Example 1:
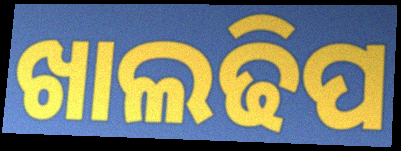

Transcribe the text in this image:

ଖାଲଢିପ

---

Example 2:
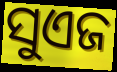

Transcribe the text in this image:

ସୁଏଜ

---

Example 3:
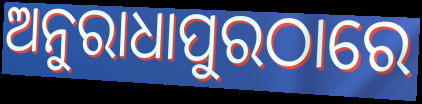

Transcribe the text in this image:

ଅନୁରାଧାପୁରଠାରେ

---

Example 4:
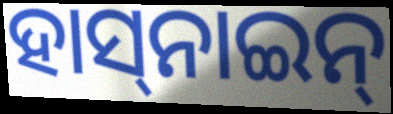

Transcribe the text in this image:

ହାସ୍‌ନାଇନ୍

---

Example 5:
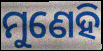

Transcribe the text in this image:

ମୁଣେହି